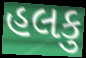
હલકુ